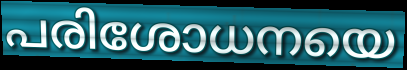
പരിശോധനയെ